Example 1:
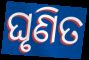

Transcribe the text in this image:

ଘୃଣିତ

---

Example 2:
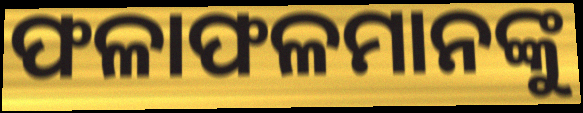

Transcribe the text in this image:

ଫଳାଫଳମାନଙ୍କୁ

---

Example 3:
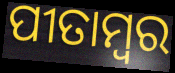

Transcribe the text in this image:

ପୀତାମ୍ୱର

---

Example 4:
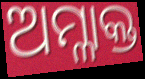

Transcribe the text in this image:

ଅମ୍ଳାକ୍ତ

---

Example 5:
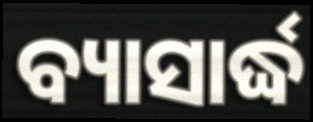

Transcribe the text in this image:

ବ୍ୟାସାର୍ଦ୍ଧ